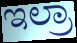
ಇಲ್ರಾ